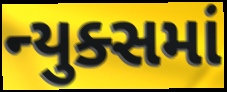
ન્યુક્સમાં